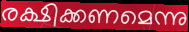
രക്ഷിക്കണമെന്നു